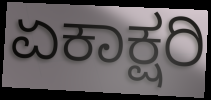
ಏಕಾಕ್ಷರಿ